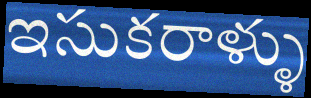
ఇసుకరాళ్ళు